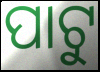
ପାଟୁ